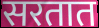
सरतात